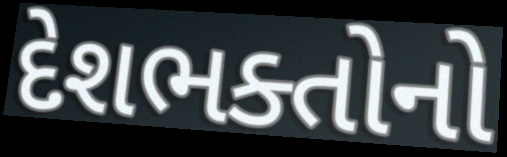
દેશભક્તોનો